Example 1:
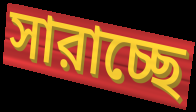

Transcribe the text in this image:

সারাচ্ছে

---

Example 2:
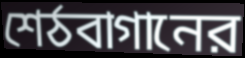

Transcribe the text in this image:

শেঠবাগানের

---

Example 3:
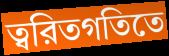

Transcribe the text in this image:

ত্বরিতগতিতে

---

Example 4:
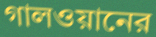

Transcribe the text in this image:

গালওয়ানের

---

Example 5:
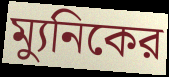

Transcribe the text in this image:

ম্যুনিকের